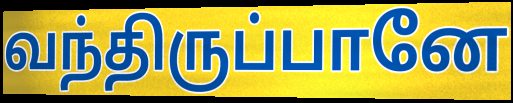
வந்திருப்பானே